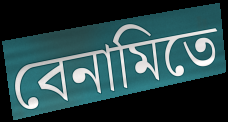
বেনামিতে